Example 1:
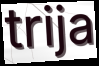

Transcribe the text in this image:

trija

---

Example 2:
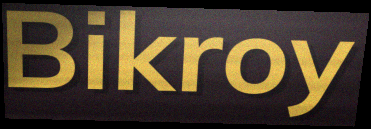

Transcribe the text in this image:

Bikroy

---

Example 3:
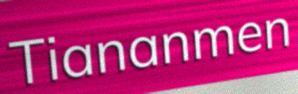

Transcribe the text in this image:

Tiananmen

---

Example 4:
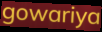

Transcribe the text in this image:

gowariya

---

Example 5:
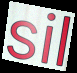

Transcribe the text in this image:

sil